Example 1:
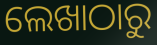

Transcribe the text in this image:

ଲେଖାଠାରୁ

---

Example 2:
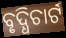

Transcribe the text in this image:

ବୃଦ୍ଧିଚାର୍ଟ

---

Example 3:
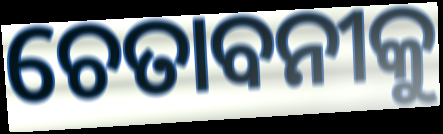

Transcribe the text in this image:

ଚେତାବନୀକୁ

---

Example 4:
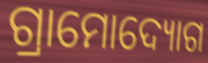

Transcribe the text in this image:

ଗ୍ରାମୋଦ୍ୟୋଗ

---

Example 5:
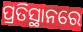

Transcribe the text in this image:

ପ୍ରତିସ୍ଥାନରେ